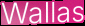
Wallas